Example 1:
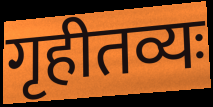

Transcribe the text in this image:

गृहीतव्यः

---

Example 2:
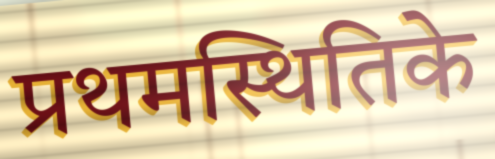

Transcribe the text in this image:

प्रथमस्थितिके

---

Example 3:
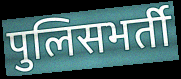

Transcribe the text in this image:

पुलिसभर्ती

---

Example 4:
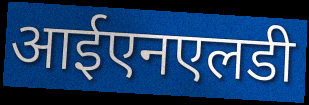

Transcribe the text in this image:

आईएनएलडी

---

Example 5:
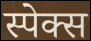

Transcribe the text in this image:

स्पेक्स